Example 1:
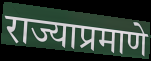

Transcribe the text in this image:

राज्याप्रमाणे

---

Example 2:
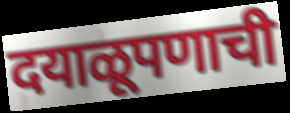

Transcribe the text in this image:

दयाळूपणाची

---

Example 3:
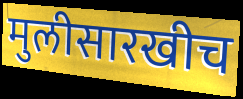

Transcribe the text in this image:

मुलीसारखीच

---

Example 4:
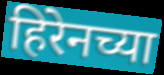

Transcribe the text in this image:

हिरेनच्या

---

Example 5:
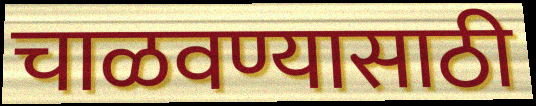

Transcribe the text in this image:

चाळवण्यासाठी